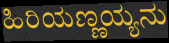
ಹಿರಿಯಣ್ಣಯ್ಯನು